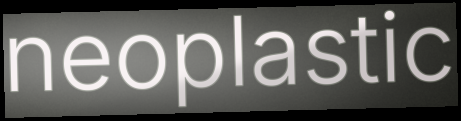
neoplastic